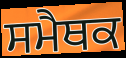
ਸਮੈਥਕ